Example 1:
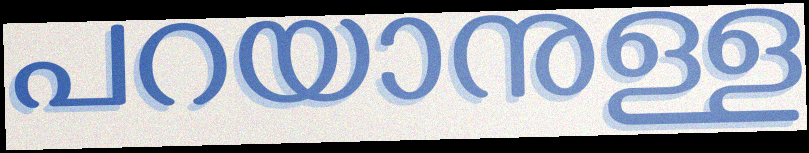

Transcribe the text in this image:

പറയാനുള്ള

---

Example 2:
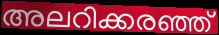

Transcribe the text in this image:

അലറിക്കരഞ്ഞ്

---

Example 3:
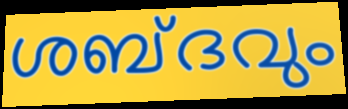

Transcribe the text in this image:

ശബ്ദവും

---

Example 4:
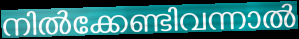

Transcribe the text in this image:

നിൽക്കേണ്ടിവന്നാൽ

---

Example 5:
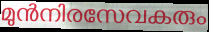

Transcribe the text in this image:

മുൻനിരസേവകരും